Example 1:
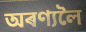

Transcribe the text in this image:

অৰণ্যলৈ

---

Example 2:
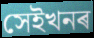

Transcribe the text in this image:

সেইখনৰ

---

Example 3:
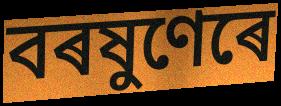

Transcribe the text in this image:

বৰষুণেৰে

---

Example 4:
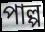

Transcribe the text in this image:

পাল্প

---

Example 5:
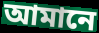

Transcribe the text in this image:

আমানে